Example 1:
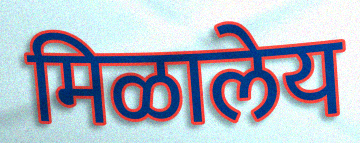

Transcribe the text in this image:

मिळालेय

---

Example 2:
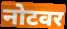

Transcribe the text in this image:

नोटवर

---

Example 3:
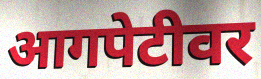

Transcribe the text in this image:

आगपेटीवर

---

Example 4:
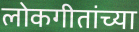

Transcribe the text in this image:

लोकगीतांच्या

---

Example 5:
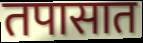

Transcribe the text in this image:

तपासात